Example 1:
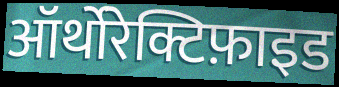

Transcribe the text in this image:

ऑर्थोरेक्टिफ़ाइड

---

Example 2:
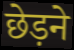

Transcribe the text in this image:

छेड़ने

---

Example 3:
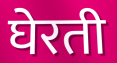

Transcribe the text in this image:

घेरती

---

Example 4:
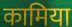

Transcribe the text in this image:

कामिया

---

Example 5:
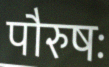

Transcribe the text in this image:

पौरुषः